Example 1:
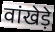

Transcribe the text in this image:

वांखेड़े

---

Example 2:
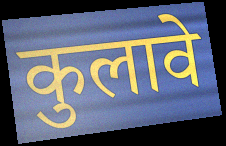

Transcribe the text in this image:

कुलावे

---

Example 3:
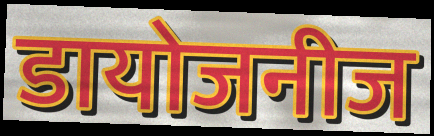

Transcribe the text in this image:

डायोजनीज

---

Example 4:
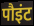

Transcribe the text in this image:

पौइंट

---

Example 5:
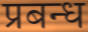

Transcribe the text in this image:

प्रबन्ध